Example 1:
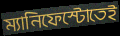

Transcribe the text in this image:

ম্যানিফেস্টোতেই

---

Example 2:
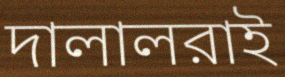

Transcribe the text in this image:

দালালরাই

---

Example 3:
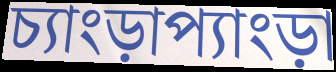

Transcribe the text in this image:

চ্যাংড়াপ্যাংড়া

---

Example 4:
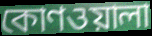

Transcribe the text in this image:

কোণওয়ালা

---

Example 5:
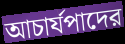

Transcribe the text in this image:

আচার্যপাদের